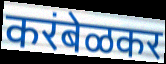
करंबेळकर